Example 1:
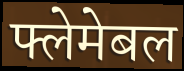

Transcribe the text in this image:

फ्लेमेबल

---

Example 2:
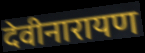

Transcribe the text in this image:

देवीनारायण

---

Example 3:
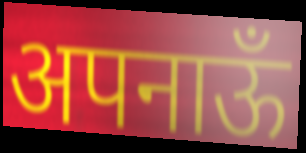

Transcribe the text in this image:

अपनाऊँ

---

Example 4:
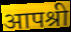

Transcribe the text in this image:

आपश्री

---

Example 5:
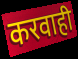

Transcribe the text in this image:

करवाही